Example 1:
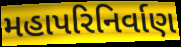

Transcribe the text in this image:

મહાપરિનિર્વાણ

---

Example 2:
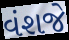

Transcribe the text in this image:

વંશજે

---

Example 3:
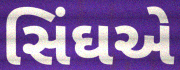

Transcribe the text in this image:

સિંઘએ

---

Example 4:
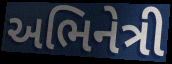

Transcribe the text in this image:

અભિનેત્રી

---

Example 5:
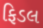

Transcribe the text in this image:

ફિડલ